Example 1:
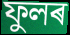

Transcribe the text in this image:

ফুলৰ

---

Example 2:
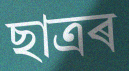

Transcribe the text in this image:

ছাত্ৰৰ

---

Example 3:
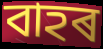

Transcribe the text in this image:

বাহৰ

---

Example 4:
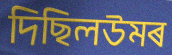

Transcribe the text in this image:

দিছিলউমৰ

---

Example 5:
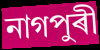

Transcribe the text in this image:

নাগপুৰী